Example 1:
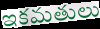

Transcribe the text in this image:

ఇకమతులు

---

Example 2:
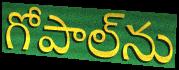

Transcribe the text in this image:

గోపాల్‌ను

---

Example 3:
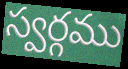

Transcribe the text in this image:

స్వర్గము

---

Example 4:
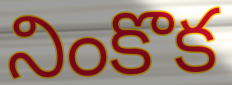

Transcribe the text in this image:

నింకొక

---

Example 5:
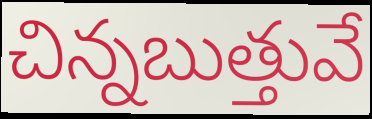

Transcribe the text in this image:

చిన్నబుత్తువే